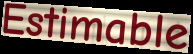
Estimable